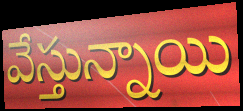
వేస్తున్నాయి